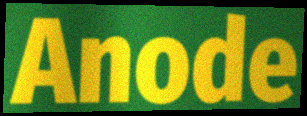
Anode